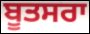
ਬੂਤਸਰਾ